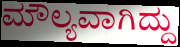
ಮೌಲ್ಯವಾಗಿದ್ದು